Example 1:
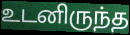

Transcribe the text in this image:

உடனிருந்த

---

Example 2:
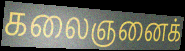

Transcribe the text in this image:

கலைஞனைக்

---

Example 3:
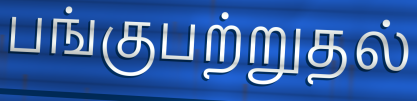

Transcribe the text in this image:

பங்குபற்றுதல்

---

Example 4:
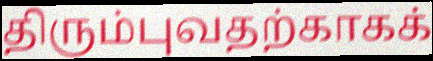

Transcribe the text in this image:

திரும்புவதற்காகக்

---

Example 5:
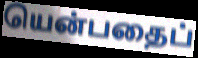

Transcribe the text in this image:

யென்பதைப்